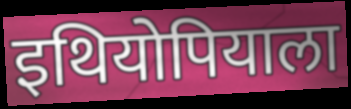
इथियोपियाला